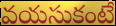
వయసుకంటే